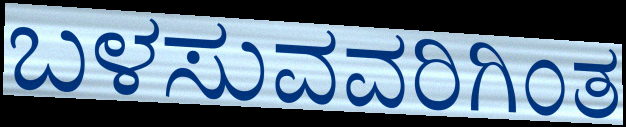
ಬಳಸುವವರಿಗಿಂತ